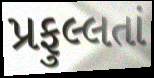
પ્રફુલ્લતાં